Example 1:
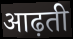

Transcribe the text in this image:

आढ़ती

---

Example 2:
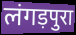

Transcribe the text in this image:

लंगड़पुरा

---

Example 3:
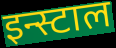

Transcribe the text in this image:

इन्स्टाल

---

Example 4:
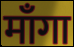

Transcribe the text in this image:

माँगा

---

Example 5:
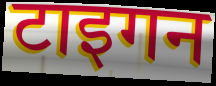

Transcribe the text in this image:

टाइगन